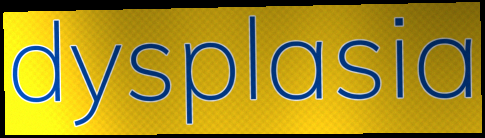
dysplasia